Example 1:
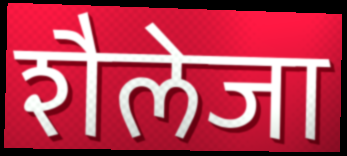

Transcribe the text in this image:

शैलेजा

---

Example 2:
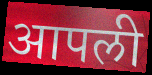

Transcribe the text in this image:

आपली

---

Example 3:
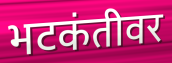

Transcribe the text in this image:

भटकंतीवर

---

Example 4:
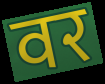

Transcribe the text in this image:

वर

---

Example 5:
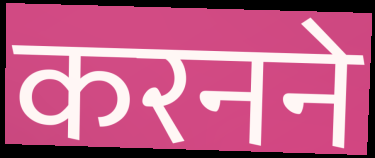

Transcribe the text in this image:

करनने